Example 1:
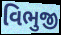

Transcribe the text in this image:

વિભુજી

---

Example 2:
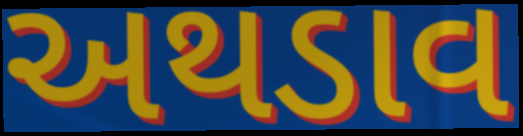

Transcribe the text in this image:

અથડાવ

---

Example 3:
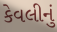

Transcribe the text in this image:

કેવલીનું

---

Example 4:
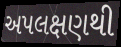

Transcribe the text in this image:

અપલક્ષણથી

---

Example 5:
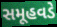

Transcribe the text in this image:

સમૂહવડે